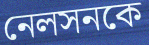
নেলসনকে